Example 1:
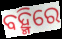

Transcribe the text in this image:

ବହ୍ମିରେ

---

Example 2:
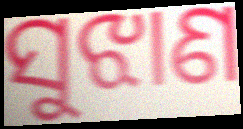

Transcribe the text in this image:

ସୁଝାଣ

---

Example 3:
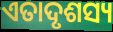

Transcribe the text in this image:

ଏତାଦୃଶସ୍ୟ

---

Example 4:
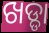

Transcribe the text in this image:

ଖଡ୍ଡା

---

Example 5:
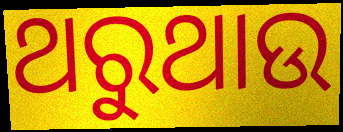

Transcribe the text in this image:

ଥରୁଥାଉ